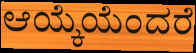
ಆಯ್ಕೆಯೆಂದರೆ